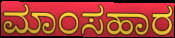
ಮಾಂಸಹಾರ